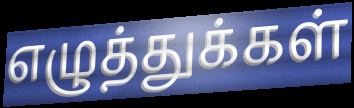
எழுத்துக்கள்